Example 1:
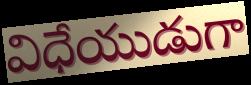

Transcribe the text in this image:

విధేయుడుగా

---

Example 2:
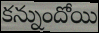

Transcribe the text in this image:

కన్నుందోయి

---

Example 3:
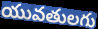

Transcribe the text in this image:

యువతులగు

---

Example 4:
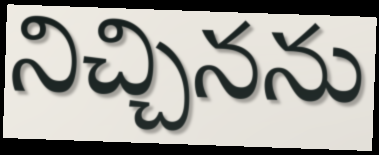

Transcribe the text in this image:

నిచ్చినను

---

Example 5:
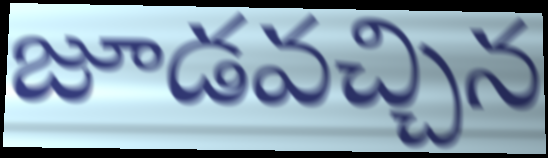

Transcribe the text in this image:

జూడవచ్చిన